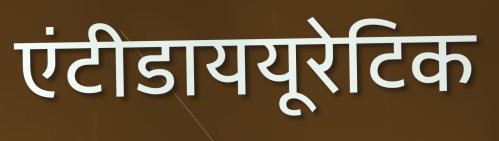
एंटीडाययूरेटिक